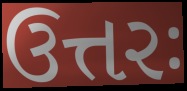
ઉત્તરઃ